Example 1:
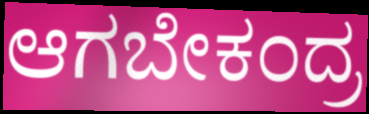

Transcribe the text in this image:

ಆಗಬೇಕಂದ್ರ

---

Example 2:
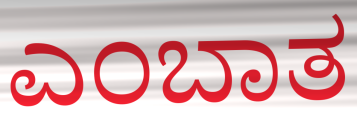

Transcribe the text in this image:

ಎಂಬಾತ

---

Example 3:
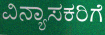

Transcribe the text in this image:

ವಿನ್ಯಾಸಕರಿಗೆ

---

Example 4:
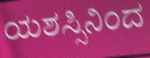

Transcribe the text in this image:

ಯಶಸ್ಸಿನಿಂದ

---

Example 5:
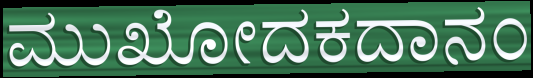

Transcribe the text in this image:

ಮುಖೋದಕದಾನಂ